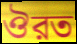
ঔরত